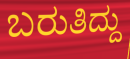
ಬರುತಿದ್ದು